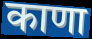
काणा